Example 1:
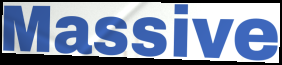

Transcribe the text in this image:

Massive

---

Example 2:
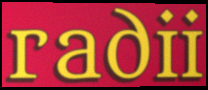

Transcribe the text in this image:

radii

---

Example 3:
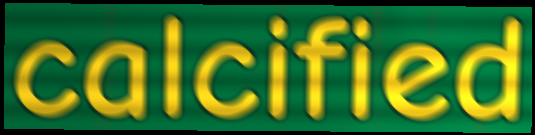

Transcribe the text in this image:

calcified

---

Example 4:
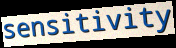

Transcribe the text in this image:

sensitivity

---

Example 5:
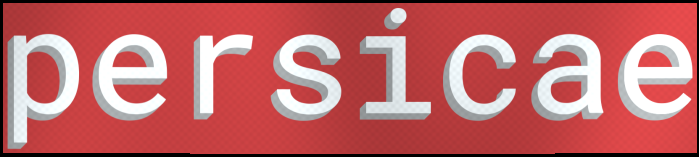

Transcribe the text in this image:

persicae